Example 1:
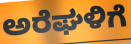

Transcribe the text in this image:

ಅರೆಘಳಿಗೆ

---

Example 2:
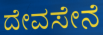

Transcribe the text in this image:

ದೇವಸೇನೆ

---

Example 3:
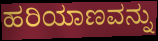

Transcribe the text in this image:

ಹರಿಯಾಣವನ್ನು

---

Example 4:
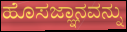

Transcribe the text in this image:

ಹೊಸಜ್ಞಾನವನ್ನು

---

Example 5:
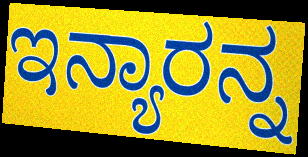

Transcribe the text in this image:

ಇನ್ಯಾರನ್ನ